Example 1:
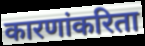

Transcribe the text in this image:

कारणांकरिता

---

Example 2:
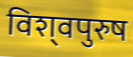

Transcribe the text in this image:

विश्वपुरुष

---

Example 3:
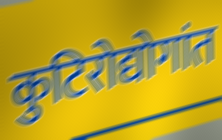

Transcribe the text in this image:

कुटिरोद्योगांत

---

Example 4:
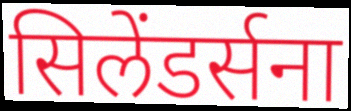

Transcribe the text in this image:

सिलेंडर्सना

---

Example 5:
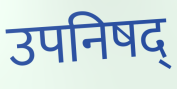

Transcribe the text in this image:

उपनिषद्